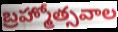
బ్రహ్మోత్సవాల